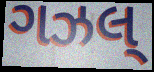
ગઝલ્